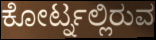
ಕೋರ್ಟ್ನಲ್ಲಿರುವ